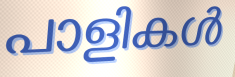
പാളികൾ